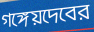
গঙ্গেয়দেবের